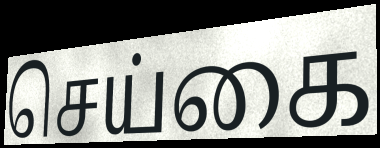
செய்கை